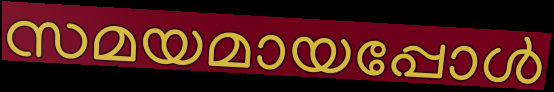
സമയമായപ്പോൾ